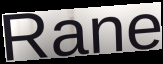
Rane